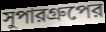
সুপারগ্রুপের